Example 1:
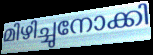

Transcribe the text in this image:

മിഴിച്ചുനോക്കി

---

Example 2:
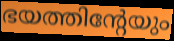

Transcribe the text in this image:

ഭയത്തിന്റേയും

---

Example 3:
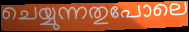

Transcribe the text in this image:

ചെയ്യുന്നതുപോലെ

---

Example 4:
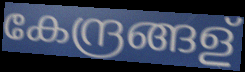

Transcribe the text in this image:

കേന്ദ്രങ്ങള്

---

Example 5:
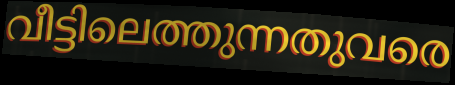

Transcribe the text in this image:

വീട്ടിലെത്തുന്നതുവരെ